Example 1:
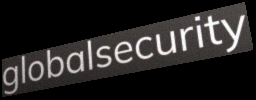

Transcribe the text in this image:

globalsecurity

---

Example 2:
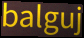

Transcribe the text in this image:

balguj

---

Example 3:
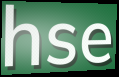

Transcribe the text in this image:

hse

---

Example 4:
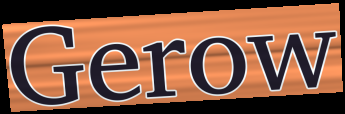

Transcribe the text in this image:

Gerow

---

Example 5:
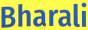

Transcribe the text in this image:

Bharali